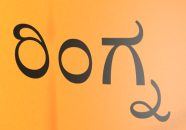
ರಿಂಗ್ನ